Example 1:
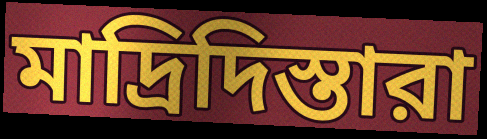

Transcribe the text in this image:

মাদ্রিদিস্তারা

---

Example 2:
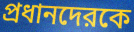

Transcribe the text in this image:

প্রধানদেরকে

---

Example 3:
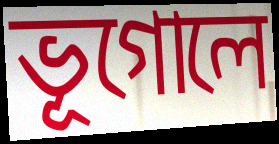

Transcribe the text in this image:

ভূগোলে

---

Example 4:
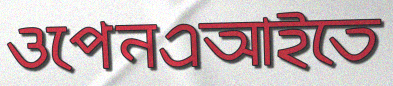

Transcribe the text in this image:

ওপেনএআইতে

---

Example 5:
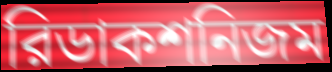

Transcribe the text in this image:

রিডাকশনিজম